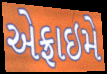
એફ્રાઇમે